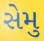
સેમુ